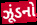
ઝૂંડનો